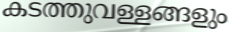
കടത്തുവള്ളങ്ങളും